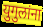
युगुलांना